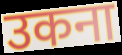
उकना